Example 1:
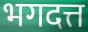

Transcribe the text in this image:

भगदत्त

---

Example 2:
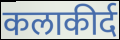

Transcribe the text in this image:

कलाकीर्द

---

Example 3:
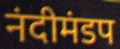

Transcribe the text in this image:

नंदीमंडप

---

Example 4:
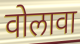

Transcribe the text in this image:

वोलावा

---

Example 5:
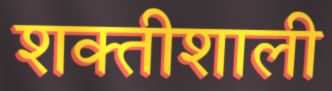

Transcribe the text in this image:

शक्‍तीशाली